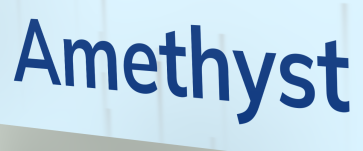
Amethyst